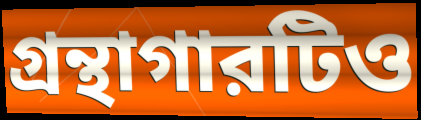
গ্রন্থাগারটিও